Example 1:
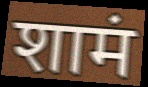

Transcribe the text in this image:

शामं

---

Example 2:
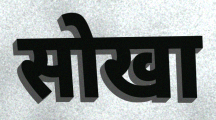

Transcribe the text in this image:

सोखा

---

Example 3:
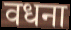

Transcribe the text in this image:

वधना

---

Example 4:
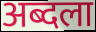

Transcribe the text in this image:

अब्दला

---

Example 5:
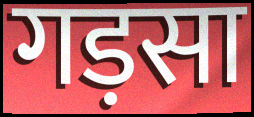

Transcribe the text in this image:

गड़सा